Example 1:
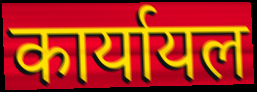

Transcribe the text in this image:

कार्यायल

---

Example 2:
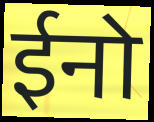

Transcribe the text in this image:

ईनो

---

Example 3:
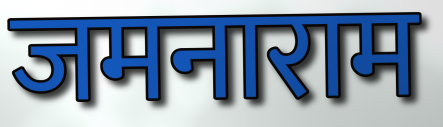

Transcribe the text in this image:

जमनाराम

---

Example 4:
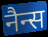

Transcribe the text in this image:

नैन्स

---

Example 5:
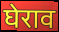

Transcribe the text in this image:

घेराव